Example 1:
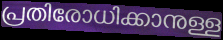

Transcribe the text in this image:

പ്രതിരോധിക്കാനുള്ള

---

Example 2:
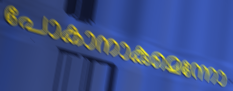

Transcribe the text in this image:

പോകാനാകുമെന്നോ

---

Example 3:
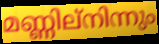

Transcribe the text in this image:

മണ്ണില്നിന്നും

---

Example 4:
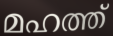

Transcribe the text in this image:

മഹത്ത്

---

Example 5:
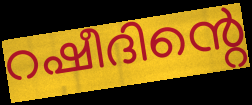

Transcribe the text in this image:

റഷീദിന്റെ